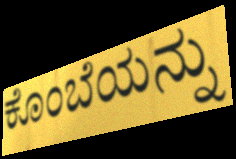
ಕೊಂಬೆಯನ್ನು